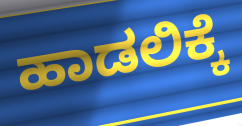
ಹಾಡಲಿಕ್ಕೆ